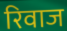
रिवाज